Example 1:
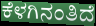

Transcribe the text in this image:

ಕೆಳಗಿನಂತಿದೆ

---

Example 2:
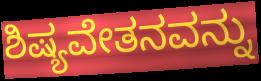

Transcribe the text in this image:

ಶಿಷ್ಯವೇತನವನ್ನು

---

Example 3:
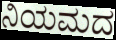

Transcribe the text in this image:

ನಿಯಮದ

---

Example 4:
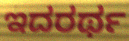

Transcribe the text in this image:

ಇದರರ್ಥ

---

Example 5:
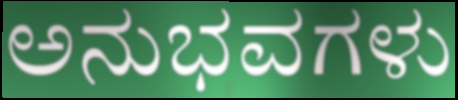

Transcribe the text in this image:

ಅನುಭವಗಳು